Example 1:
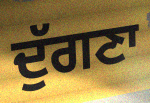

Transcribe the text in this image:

ਦੁੱਗਣਾ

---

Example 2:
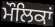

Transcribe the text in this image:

ਮੌਲਿਕਾਂ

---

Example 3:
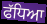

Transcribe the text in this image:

ਫੱਧਿਆ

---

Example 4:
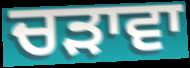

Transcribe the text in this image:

ਚੜਾਵਾ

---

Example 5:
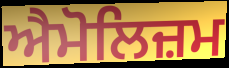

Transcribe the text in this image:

ਐਮੋਲਿਜ਼ਮ